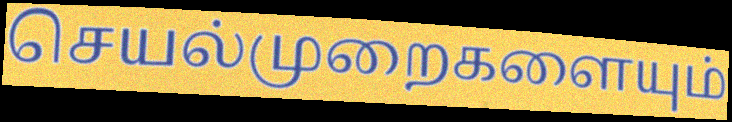
செயல்முறைகளையும்